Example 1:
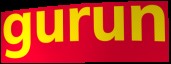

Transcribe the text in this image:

gurun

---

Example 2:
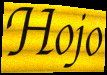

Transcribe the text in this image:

Hojo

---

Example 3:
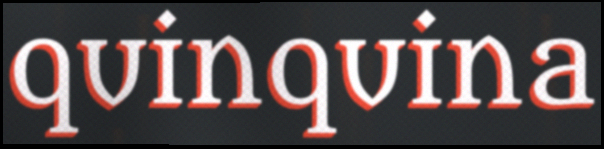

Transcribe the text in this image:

quinquina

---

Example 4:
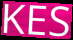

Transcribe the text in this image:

KES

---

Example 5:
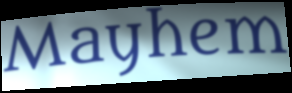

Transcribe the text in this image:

Mayhem